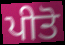
ਪੀਤੋ